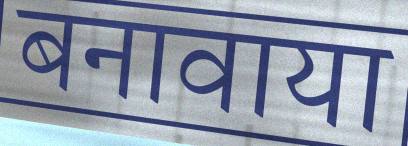
बनावाया